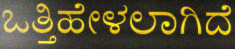
ಒತ್ತಿಹೇಳಲಾಗಿದೆ